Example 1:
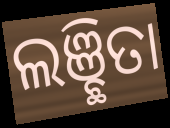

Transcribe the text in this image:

ଲଞ୍ଛିତା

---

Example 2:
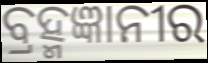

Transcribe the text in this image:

ବ୍ରହ୍ମଜ୍ଞାନୀର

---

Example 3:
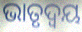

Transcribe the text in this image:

ଭାତୃଦ୍ବୟ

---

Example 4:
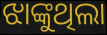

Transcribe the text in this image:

ଝାଙ୍କୁଥିଲା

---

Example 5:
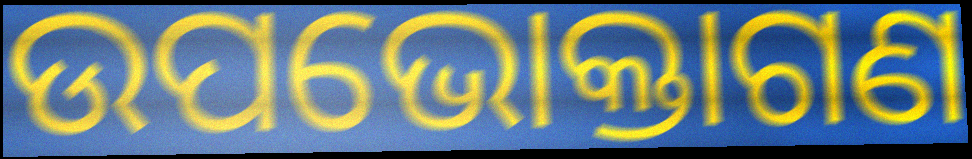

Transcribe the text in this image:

ଉପଭୋକ୍ତାଗଣ